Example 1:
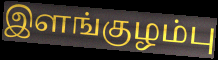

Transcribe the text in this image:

இளங்குழம்பு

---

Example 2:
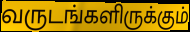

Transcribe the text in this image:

வருடங்களிருக்கும்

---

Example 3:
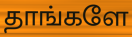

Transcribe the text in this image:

தாங்களே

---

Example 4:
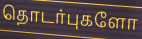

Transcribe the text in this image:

தொடர்புகளோ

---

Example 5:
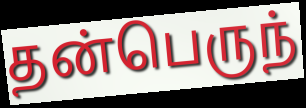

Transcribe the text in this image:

தன்பெருந்